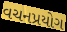
વચનપ્રયોગ